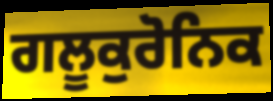
ਗਲੂਕੁਰੋਨਿਕ